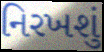
નિરખશું